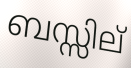
ബസ്സില്